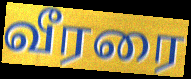
வீரரை